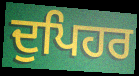
ਦੁਪਿਹਰ